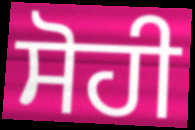
ਸੋਹੀ